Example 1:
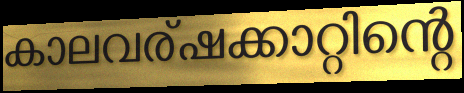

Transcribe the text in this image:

കാലവര്ഷക്കാറ്റിന്റെ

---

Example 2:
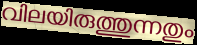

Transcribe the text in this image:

വിലയിരുത്തുന്നതും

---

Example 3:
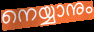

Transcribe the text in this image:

നെയ്യാനും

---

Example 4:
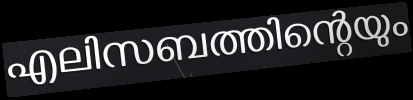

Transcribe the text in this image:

എലിസബത്തിന്റെയും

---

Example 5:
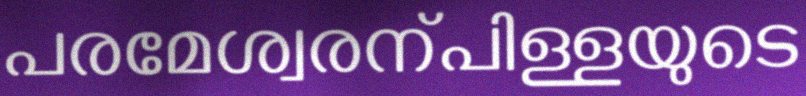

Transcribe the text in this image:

പരമേശ്വരന്പിള്ളയുടെ